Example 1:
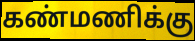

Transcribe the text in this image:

கண்மணிக்கு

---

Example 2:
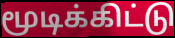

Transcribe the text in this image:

மூடிக்கிட்டு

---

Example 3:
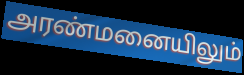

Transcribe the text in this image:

அரண்மனையிலும்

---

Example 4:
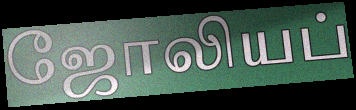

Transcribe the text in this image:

ஜோலியப்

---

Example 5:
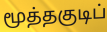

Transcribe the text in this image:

மூத்தகுடிப்